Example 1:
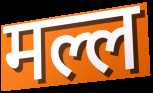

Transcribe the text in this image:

मल्ल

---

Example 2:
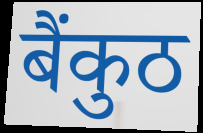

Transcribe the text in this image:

बैंकुठ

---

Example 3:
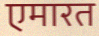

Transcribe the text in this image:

एमारत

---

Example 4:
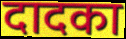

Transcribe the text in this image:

दादका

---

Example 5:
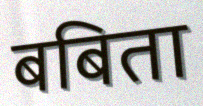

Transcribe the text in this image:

बबिता